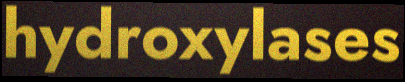
hydroxylases